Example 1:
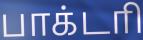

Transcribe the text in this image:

பாக்டரி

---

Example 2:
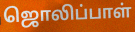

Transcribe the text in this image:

ஜொலிப்பாள்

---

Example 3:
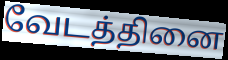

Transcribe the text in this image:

வேடத்தினை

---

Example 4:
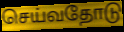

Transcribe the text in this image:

செய்வதோடு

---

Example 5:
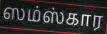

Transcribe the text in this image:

ஸம்ஸ்கார